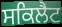
ਸਕਿਲੈਟ